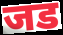
जड